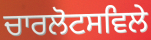
ਚਾਰਲੋਟਸਵਿਲੇ